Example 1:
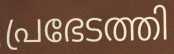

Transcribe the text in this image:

പ്രഭേടത്തി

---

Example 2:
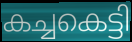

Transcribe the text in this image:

കച്ചകെട്ടി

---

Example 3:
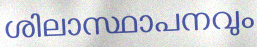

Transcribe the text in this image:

ശിലാസ്ഥാപനവും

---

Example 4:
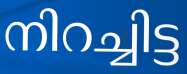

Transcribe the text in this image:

നിറച്ചിട്ട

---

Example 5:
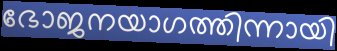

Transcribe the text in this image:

ഭോജനയാഗത്തിന്നായി